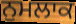
ਨੁਮਲਾਕ